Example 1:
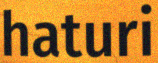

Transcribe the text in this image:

haturi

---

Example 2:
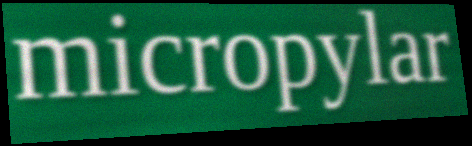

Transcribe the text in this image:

micropylar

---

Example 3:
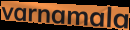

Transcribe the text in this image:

varnamala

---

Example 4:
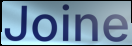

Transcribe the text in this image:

Joine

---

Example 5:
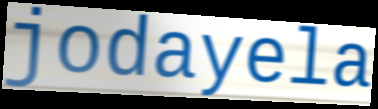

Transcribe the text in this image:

jodayela